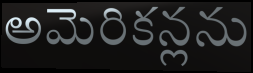
అమెరికన్లను